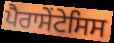
ਪੈਰਾਸੇਂਟੇਸਿਸ